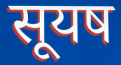
सूयष